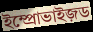
ইম্প্রোভাইজ়ড